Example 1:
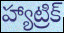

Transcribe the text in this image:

హ్యాట్రిక్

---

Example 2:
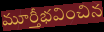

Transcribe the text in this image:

మూర్తీభవించిన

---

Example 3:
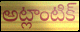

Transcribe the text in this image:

అట్లాంటిక్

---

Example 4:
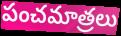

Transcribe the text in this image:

పంచమాత్రలు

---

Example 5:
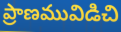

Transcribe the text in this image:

ప్రాణమువిడిచి